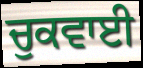
ਚੁਕਵਾਈ